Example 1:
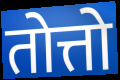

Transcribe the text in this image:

तोत्तो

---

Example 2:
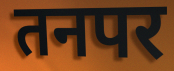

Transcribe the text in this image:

तनपर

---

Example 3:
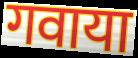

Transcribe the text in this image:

गवाया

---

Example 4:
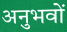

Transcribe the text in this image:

अनुभवों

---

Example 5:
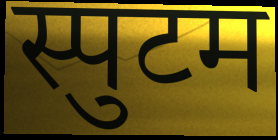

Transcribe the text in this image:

स्पुटम